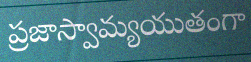
ప్రజాస్వామ్యయుతంగా